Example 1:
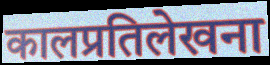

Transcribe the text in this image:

कालप्रतिलेखना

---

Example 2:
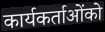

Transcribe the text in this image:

कार्यकर्ताओंको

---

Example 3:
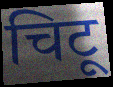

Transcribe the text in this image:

चिटू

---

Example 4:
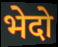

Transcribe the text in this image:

भेदो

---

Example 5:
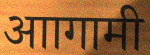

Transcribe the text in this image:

आागामी